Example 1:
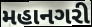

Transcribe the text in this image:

મહાનગરી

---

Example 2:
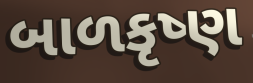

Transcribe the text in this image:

બાળકૃષ્ણ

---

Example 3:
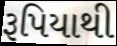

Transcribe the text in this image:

રૂપિયાથી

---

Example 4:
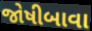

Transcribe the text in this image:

જોષીબાવા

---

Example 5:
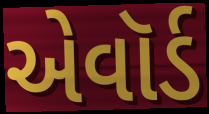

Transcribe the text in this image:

એવૉર્ડ